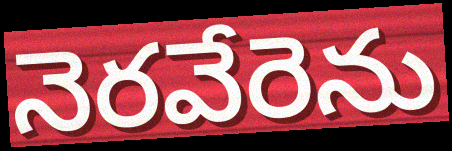
నెరవేరెను